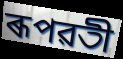
ৰূপৱতী